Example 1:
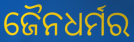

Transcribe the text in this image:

ଜୈନଧର୍ମର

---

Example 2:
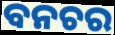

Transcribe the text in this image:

ବନଚର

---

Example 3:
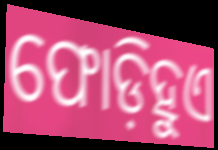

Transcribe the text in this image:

ଫୋଡ଼ିହୁଏ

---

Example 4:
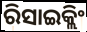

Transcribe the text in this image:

ରିସାଇକ୍ଲିଂ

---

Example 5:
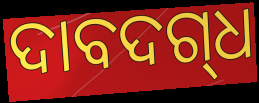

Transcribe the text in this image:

ଦାବଦଗ୍‍ଧ